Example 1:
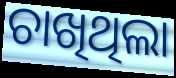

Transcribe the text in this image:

ଚାଖିଥିଲା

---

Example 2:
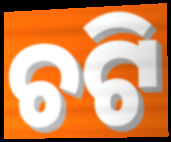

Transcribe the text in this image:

ଚଟି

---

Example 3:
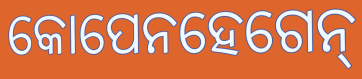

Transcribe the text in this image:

କୋପେନହେଗେନ୍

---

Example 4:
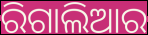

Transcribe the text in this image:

ରିଗାଲିଆର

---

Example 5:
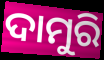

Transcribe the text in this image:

ଦାମୁରି